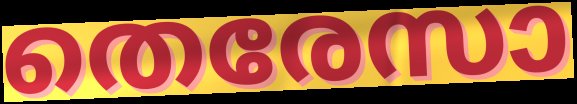
തെരേസാ